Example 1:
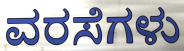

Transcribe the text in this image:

ವರಸೆಗಳು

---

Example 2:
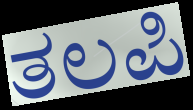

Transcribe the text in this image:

ತಲಪಿ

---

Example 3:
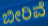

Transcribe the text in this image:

ಬೀರಿವೆ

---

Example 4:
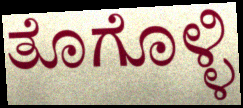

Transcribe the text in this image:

ತೊಗೊಳ್ಳಿ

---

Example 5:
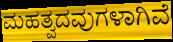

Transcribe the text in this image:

ಮಹತ್ವದವುಗಳಾಗಿವೆ